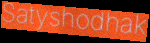
Satyshodhak